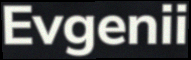
Evgenii